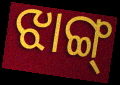
ଝାଙ୍ଗ୍